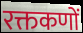
रक्तकणों